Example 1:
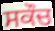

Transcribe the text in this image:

ਸਕੌਚ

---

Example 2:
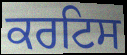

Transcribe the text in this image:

ਕਰਟਿਸ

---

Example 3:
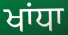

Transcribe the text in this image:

ਖਾਂਧਾ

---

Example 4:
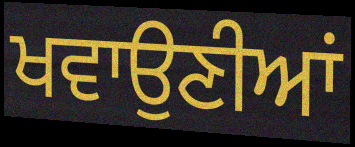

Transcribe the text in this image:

ਖਵਾਉਣੀਆਂ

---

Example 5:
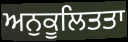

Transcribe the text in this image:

ਅਨੁਕੂਲਿਤਤਾ